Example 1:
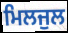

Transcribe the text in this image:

ਮਿਲਜੁਲ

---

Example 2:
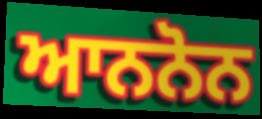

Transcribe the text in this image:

ਆਨਨੋਨ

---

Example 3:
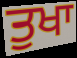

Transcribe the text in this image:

ਤੁਖਾ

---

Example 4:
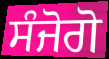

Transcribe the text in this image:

ਸੰਜੋਗੋ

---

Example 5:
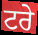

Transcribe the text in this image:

ਟਰੇ